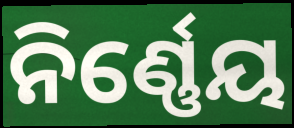
ନିର୍ଣ୍ଣେୟ